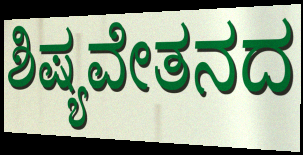
ಶಿಷ್ಯವೇತನದ